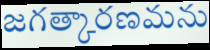
జగత్కారణమను